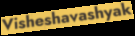
Visheshavashyak